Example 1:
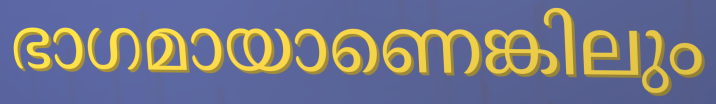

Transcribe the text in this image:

ഭാഗമായാണെങ്കിലും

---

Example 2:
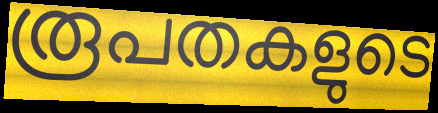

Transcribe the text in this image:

രൂപതകളുടെ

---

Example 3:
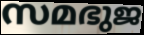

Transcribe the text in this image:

സമഭുജ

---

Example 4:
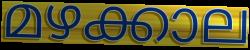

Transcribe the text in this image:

മഴക്കാല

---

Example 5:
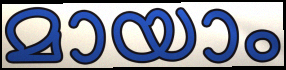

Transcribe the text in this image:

മായാം